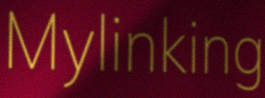
Mylinking